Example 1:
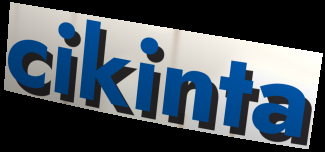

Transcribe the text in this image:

cikinta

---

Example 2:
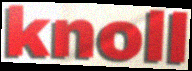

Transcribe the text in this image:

knoll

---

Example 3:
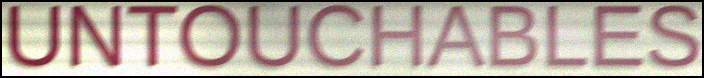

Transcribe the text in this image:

UNTOUCHABLES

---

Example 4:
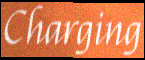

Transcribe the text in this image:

Charging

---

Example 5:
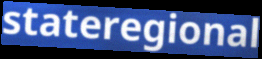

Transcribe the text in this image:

stateregional